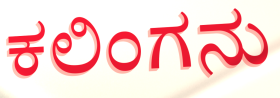
ಕಲಿಂಗನು